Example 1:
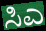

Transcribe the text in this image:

ಸಿಎ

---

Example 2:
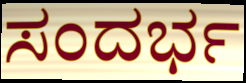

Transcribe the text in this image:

ಸಂದರ್ಭ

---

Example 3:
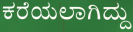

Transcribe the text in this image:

ಕರೆಯಲಾಗಿದ್ದು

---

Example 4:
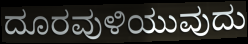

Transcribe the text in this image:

ದೂರವುಳಿಯುವುದು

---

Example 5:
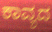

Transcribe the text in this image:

ಕಾವ್ಯದ